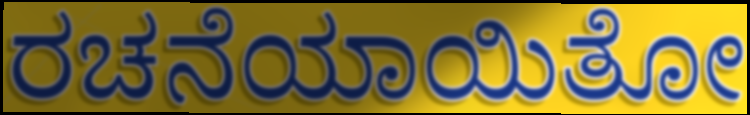
ರಚನೆಯಾಯಿತೋ